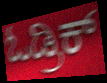
ಓಡ್ರಿಕ್